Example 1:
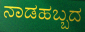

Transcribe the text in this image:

ನಾಡಹಬ್ಬದ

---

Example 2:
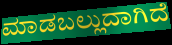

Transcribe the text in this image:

ಮಾಡಬಲ್ಲುದಾಗಿದೆ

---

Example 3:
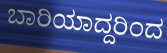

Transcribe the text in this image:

ಬಾರಿಯಾದ್ದರಿಂದ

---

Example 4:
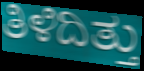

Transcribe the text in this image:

ತಿಳಿದಿತ್ತು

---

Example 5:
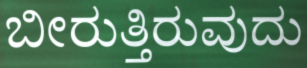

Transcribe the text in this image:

ಬೀರುತ್ತಿರುವುದು